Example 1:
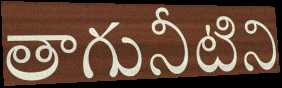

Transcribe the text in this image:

తాగునీటిని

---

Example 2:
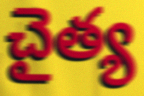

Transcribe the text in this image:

చైత్య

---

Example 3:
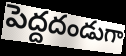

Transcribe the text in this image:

పెద్దదండుగా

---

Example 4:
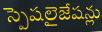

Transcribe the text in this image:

స్పెషలైజేషన్లు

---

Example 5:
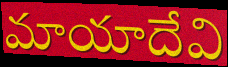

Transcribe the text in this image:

మాయాదేవి